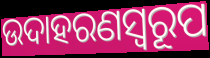
ଉଦାହରଣସ୍ୱରୂପ